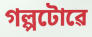
গল্পটোৱে